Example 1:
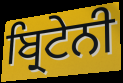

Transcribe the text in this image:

ਬ੍ਰਿਟੇਨੀ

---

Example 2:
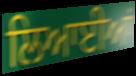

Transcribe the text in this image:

ਲਿਆਈਆਂ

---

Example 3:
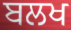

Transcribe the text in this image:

ਬਲਖ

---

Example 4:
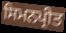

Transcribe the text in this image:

ਸਿਮਨਪ੍ਰੀਤ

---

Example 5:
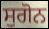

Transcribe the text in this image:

ਸੁਗੋਨ